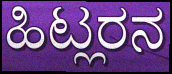
ಹಿಟ್ಲರನ